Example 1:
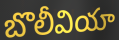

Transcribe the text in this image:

బొలీవియా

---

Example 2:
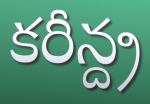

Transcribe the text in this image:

కరీన్ద్ర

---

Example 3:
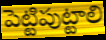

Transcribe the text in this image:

పెట్టిపుట్టాలి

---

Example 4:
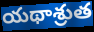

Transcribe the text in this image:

యథాశ్రుత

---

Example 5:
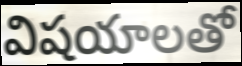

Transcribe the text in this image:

విషయాలతో